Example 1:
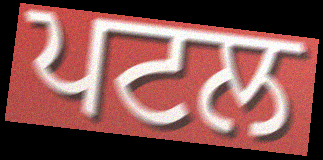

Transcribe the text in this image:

ਪਟਲ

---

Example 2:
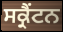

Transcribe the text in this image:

ਸਕ੍ਰੈਂਟਨ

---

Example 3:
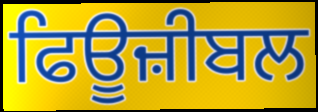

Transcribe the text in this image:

ਫਿਊਜ਼ੀਬਲ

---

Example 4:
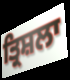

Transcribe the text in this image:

ਤ੍ਰਿਸ਼ਲਾ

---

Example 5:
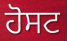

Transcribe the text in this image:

ਹੋਸਟ